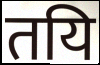
तयि